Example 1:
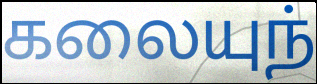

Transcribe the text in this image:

கலையுந்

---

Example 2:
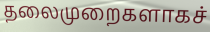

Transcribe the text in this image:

தலைமுறைகளாகச்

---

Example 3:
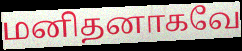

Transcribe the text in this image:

மனிதனாகவே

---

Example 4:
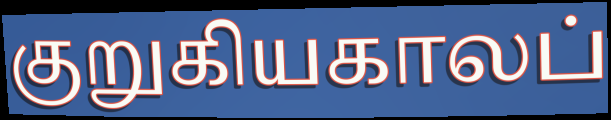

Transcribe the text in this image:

குறுகியகாலப்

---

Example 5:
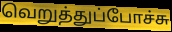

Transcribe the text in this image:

வெறுத்துப்போச்சு